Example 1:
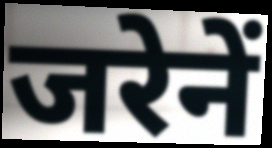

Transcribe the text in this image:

जरेनें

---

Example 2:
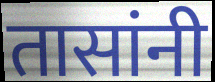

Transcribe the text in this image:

तासांनी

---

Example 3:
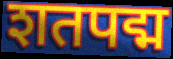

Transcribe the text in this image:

शतपद्म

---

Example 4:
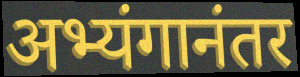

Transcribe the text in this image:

अभ्यंगानंतर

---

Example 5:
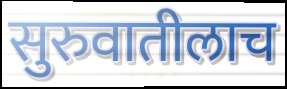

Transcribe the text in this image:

सुरुवातीलाच